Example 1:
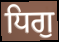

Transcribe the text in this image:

ਧਿਗੁ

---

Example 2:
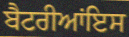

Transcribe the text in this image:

ਬੈਟਰੀਆਂਇਸ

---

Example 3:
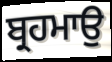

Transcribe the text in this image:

ਬ੍ਰਹਮਾਉ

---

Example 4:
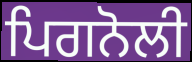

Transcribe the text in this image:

ਪਿਗਨੋਲੀ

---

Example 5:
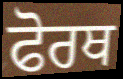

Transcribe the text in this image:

ਫੋਰਥ